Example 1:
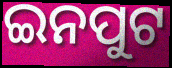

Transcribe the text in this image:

ଇନପୁଟ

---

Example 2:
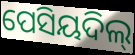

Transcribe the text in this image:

ପେସିୟଦିଲ୍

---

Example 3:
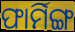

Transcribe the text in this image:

ଫାର୍ମିଙ୍ଗ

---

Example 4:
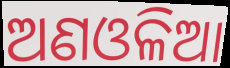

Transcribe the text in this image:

ଅଣଓଳିଆ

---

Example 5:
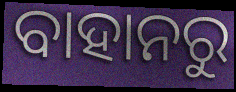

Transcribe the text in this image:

ବାହାନରୁ